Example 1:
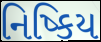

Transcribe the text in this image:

નિષ્કિય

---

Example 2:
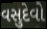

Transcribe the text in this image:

વસુદેવો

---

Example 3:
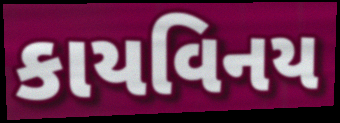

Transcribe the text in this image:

કાયવિનય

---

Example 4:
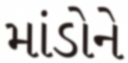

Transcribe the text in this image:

માંડોને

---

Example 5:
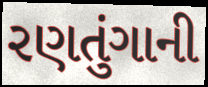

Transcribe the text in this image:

રણતુંગાની